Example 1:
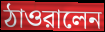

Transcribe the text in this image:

ঠাওরালেন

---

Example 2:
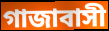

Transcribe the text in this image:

গাজাবাসী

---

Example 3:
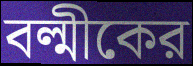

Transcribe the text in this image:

বল্মীকের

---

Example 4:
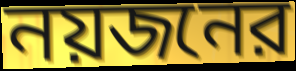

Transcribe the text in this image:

নয়জনের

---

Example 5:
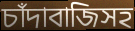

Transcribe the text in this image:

চাঁদাবাজিসহ